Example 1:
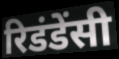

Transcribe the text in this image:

रिडंडेंसी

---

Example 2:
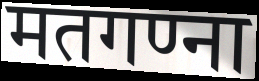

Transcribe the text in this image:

मतगण्ना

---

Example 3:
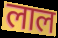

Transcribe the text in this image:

लाल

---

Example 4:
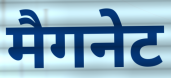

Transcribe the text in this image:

मैगनेट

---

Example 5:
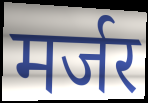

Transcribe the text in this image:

मर्जर